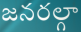
జనరల్గా